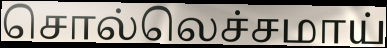
சொல்லெச்சமாய்